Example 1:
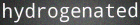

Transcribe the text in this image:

hydrogenated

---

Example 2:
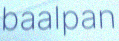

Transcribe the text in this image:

baalpan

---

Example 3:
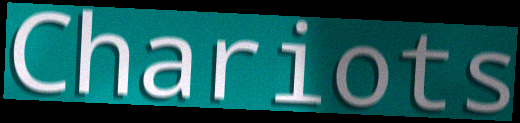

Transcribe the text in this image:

Chariots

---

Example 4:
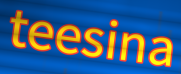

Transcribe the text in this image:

teesina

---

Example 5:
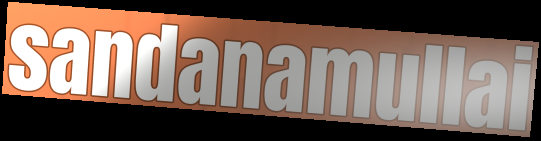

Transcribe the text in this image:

sandanamullai